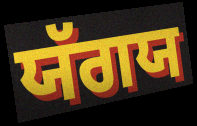
ਯੱਗਯ